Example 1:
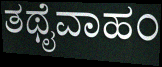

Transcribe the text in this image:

ತಥೈವಾಹಂ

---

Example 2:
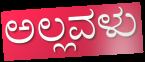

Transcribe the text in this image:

ಅಲ್ಲವಳು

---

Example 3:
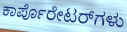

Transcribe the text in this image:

ಕಾರ್ಪೊರೇಟರ್‌ಗಳು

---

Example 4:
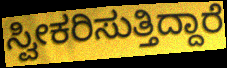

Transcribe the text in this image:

ಸ್ವೀಕರಿಸುತ್ತಿದ್ದಾರೆ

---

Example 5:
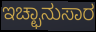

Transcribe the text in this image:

ಇಚ್ಛಾನುಸಾರ